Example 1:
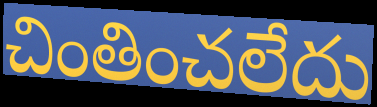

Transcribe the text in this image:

చింతించలేదు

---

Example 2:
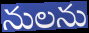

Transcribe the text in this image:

నులను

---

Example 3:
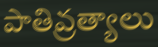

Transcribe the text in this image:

పాతివ్రత్యాలు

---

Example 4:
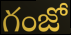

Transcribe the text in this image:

గంజో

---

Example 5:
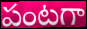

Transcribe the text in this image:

పంటగా